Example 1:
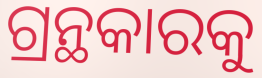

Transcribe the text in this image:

ଗ୍ରନ୍ଥକାରକୁ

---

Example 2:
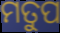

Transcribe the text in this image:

ମତୁପ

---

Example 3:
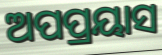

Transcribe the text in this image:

ଅପପ୍ରୟାସ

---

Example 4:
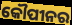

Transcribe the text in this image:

କୌପୀନର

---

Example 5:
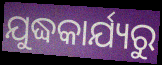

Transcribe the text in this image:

ଯୁଦ୍ଧକାର୍ଯ୍ୟରୁ